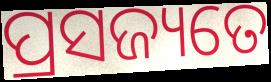
ପ୍ରସଜ୍ୟତେ